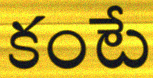
కంటే